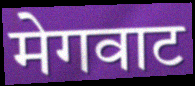
मेगवाट